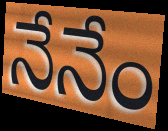
నేనేం